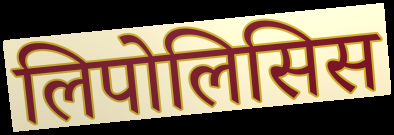
लिपोलिसिस